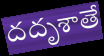
దదృశాతే